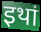
इथां